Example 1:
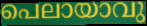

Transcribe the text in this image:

പെലായാവു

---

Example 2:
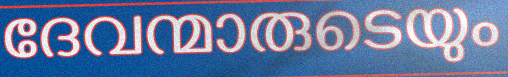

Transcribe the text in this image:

ദേവന്മാരുടെയും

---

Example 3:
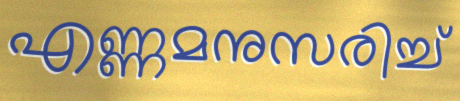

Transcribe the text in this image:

എണ്ണമനുസരിച്ച്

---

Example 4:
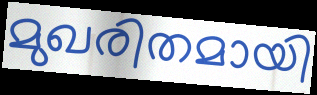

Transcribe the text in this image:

മുഖരിതമായി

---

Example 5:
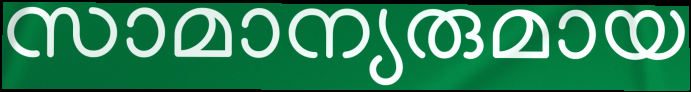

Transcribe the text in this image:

സാമാന്യരുമായ